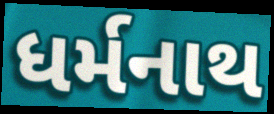
ધર્મનાથ